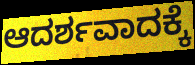
ಆದರ್ಶವಾದಕ್ಕೆ